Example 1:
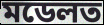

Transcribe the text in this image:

মডেলত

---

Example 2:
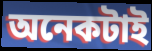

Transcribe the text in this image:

অনেকটাই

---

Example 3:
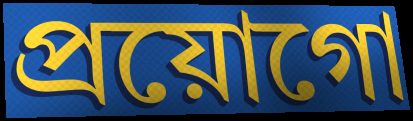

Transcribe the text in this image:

প্ৰয়োগো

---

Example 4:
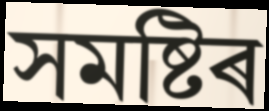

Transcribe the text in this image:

সমষ্টিৰ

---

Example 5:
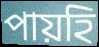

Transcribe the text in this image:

পায়হি